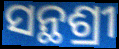
ସନ୍ଥଶ୍ରୀ